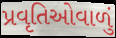
પ્રવૃતિઓવાળું